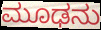
ಮೂಢನು